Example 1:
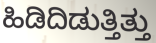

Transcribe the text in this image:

ಹಿಡಿದಿಡುತ್ತಿತ್ತು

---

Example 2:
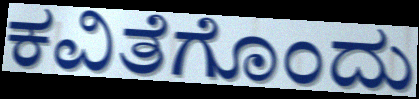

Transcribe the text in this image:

ಕವಿತೆಗೊಂದು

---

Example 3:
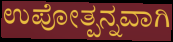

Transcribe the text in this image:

ಉಪೋತ್ಪನ್ನವಾಗಿ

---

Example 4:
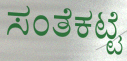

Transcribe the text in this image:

ಸಂತೆಕಟ್ಟೆ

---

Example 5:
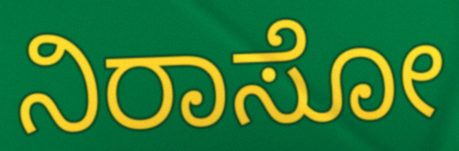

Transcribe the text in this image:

ನಿರಾಸೋ